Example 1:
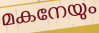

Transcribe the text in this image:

മകനേയും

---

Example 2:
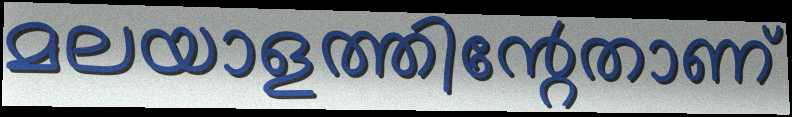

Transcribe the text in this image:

മലയാളത്തിന്റേതാണ്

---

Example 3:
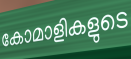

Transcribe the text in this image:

കോമാളികളുടെ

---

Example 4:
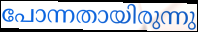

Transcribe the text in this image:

പോന്നതായിരുന്നു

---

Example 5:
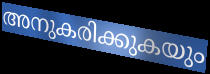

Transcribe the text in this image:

അനുകരിക്കുകയും